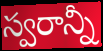
స్వరాన్నీ